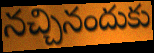
నచ్చినందుకు